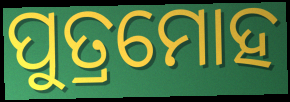
ପୁତ୍ରମୋହ